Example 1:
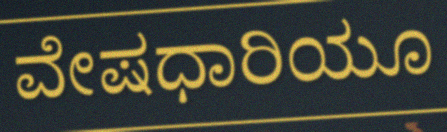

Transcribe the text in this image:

ವೇಷಧಾರಿಯೂ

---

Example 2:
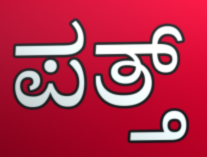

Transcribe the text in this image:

ಪತ್ತ್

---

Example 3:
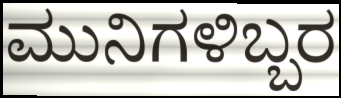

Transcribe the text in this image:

ಮುನಿಗಳಿಬ್ಬರ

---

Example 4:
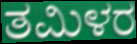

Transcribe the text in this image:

ತಮಿಳರ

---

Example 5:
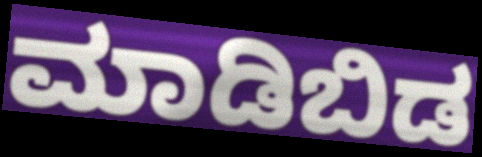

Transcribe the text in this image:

ಮಾಡಿಬಿಡ